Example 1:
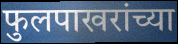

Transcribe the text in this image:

फुलपाखरांच्या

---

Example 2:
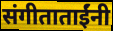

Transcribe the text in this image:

संगीताताईंनी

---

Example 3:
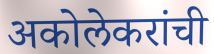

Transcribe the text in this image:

अकोलेकरांची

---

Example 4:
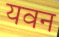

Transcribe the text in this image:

यवन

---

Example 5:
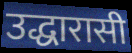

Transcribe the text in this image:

उद्धारासी